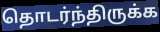
தொடர்ந்திருக்க